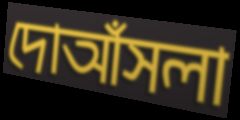
দোআঁসলা